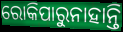
ରୋକିପାରୁନାହାନ୍ତି